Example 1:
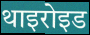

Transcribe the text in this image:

थाइरोइड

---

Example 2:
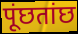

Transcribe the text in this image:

पूंछतांछ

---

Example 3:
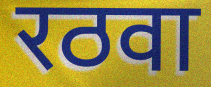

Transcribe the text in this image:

रठवा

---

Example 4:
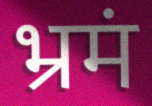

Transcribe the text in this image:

भ्रमं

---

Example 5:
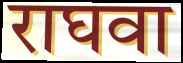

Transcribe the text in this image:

राघवा